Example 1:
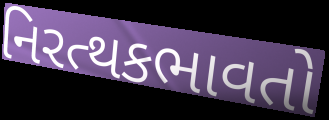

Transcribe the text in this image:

નિરત્થકભાવતો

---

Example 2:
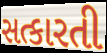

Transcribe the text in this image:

સત્કારતી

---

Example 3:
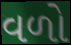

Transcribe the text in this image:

વળો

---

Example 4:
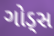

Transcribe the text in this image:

ગોડ્સ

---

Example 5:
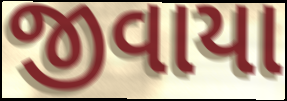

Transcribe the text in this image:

જીવાયા